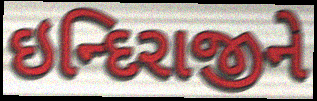
ઇન્દિરાજીને